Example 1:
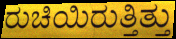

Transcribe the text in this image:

ರುಚಿಯಿರುತ್ತಿತ್ತು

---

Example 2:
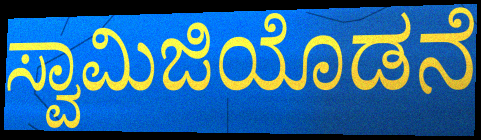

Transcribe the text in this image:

ಸ್ವಾಮಿಜಿಯೊಡನೆ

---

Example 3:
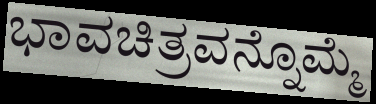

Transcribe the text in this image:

ಭಾವಚಿತ್ರವನ್ನೊಮ್ಮೆ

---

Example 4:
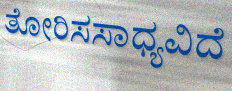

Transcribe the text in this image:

ತೋರಿಸಸಾಧ್ಯವಿದೆ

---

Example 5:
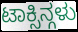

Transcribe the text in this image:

ಟಾಕ್ಸಿನ್ಗಳು